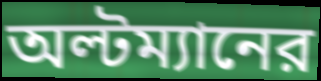
অল্টম্যানের